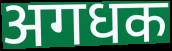
अगधक